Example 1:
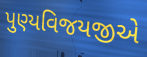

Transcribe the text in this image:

પુણ્યવિજયજીએ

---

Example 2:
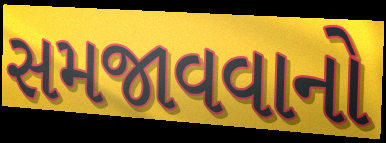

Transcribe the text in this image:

સમજાવવાનો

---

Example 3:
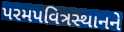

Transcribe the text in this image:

પરમપવિત્રસ્થાનને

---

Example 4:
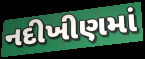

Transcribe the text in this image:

નદીખીણમાં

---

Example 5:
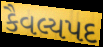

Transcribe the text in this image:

કૈવલ્યપદ